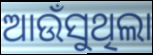
ଆଉଁସୁଥିଲା